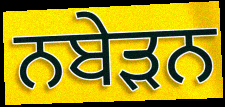
ਨਬੇੜਨ